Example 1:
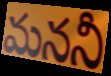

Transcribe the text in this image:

మననీ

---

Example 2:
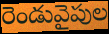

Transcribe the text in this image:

రెండువైపుల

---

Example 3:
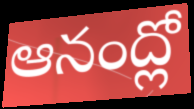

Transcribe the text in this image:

ఆనంద్లో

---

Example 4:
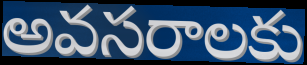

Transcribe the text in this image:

అవసరాలకు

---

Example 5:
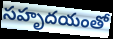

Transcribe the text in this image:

సహృదయంతో